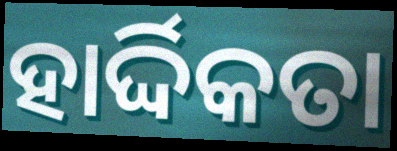
ହାର୍ଦ୍ଦିକତା